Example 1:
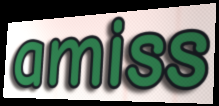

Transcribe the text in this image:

amiss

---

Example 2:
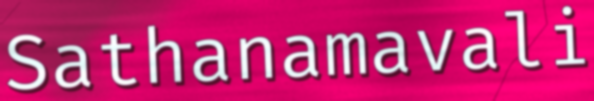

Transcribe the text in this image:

Sathanamavali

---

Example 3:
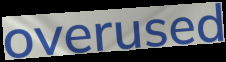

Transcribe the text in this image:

overused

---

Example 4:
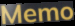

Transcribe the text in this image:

Memo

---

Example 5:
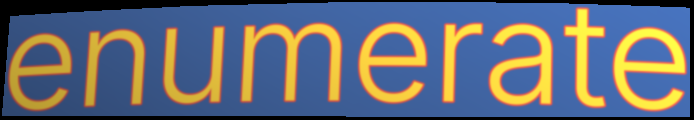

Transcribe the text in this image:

enumerate